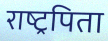
राष्ट्रपिता